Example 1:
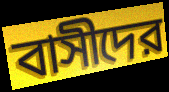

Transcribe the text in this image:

বাসীদের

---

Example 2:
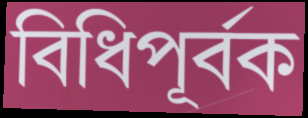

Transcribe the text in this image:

বিধিপূর্বক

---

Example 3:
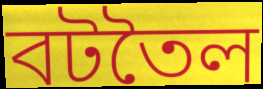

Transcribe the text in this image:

বটতৈল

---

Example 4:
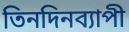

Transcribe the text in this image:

তিনদিনব্যাপী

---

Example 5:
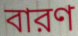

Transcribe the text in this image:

বারণ